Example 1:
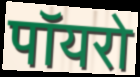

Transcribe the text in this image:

पॉयरो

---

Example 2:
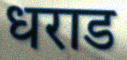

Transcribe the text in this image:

धराड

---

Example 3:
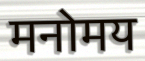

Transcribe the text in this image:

मनोमय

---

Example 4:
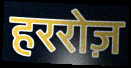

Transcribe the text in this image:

हररोज़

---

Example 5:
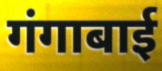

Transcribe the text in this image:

गंगाबाई